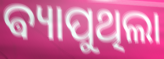
ଵ୍ୟାପୁଥିଲା